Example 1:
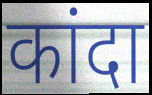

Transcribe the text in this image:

कांदा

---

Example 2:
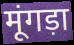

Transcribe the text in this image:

मूंगड़ा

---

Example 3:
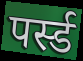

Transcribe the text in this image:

पर्स्ड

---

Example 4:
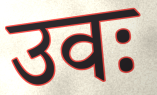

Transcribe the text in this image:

उवः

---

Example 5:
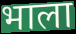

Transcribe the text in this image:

भाला